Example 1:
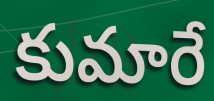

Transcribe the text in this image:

కుమారే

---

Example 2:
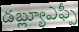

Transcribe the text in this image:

డబ్ల్యూఎఫ్పీ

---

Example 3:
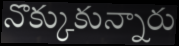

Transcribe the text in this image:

నొక్కుకున్నారు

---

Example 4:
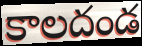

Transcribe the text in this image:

కాలదండ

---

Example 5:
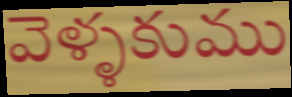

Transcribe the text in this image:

వెళ్ళకుము